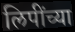
लिपींच्या